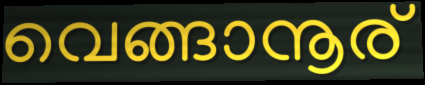
വെങ്ങാനൂര്